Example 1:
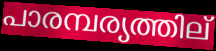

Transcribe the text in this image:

പാരമ്പര്യത്തില്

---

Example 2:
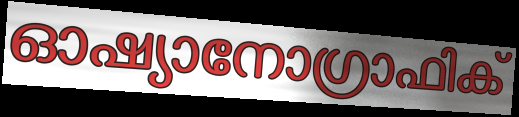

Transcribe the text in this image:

ഓഷ്യാനോഗ്രാഫിക്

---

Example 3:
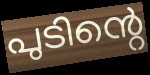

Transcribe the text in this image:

പുടിന്റെ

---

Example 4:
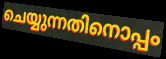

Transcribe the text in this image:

ചെയ്യുന്നതിനൊപ്പം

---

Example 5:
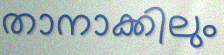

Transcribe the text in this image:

താനാക്കിലും